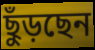
ছুঁড়ছেন